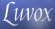
Luvox